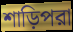
শাড়িপরা